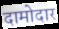
दामोदार